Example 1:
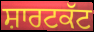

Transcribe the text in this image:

ਸ਼ਾਰਟਕੱਟ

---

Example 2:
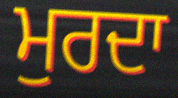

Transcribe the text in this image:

ਮੁਰਦਾ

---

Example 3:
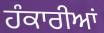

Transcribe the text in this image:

ਹੰਕਾਰੀਆਂ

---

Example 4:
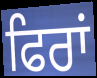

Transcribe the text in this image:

ਫਿਰਾਂ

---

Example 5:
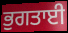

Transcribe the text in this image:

ਭੁਗਤਾਈ